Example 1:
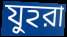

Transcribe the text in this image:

যুহরা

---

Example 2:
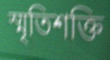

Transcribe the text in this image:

স্মৃতিশক্তি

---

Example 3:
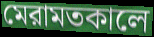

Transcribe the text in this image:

মেরামতকালে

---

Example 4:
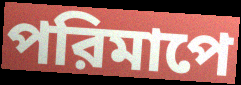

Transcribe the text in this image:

পরিমাপে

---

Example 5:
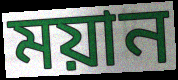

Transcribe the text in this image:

ময়ান